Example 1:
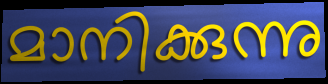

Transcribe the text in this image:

മാനിക്കുന്നു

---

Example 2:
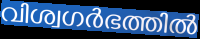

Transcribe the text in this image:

വിശ്വഗർഭത്തിൽ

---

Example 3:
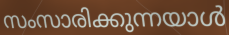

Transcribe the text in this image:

സംസാരിക്കുന്നയാൾ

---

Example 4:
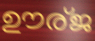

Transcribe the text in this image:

ഊര്ജ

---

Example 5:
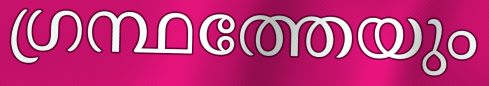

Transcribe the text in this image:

ഗ്രന്ഥത്തേയും